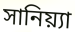
সানিয়্যা